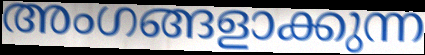
അംഗങ്ങളാക്കുന്ന